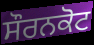
ਸੌਰਨਕੋਟ